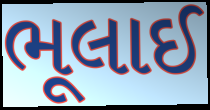
ભૂલાઈ